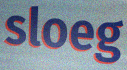
sloeg